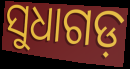
ସୁଧାଗଡ଼